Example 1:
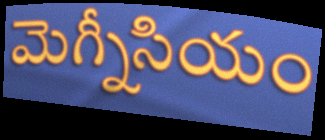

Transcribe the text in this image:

మెగ్నీసియం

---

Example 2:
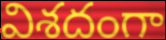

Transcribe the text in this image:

విశదంగా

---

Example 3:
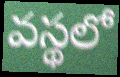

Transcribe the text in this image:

వస్థలో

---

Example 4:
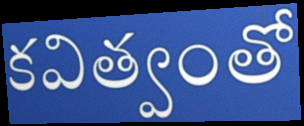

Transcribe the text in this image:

కవిత్వంతో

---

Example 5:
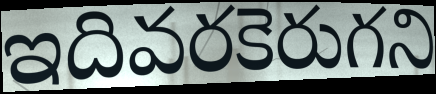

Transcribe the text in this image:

ఇదివరకెరుగని